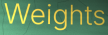
Weights